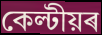
কেল্টীয়ৰ